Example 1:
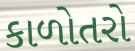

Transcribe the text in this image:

કાળોતરો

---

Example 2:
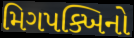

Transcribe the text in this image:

મિગપક્ખિનો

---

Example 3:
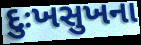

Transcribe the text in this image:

દુઃખસુખના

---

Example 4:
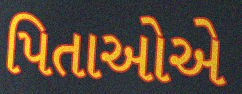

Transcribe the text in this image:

પિતાઓએ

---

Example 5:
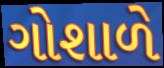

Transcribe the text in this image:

ગોશાળે